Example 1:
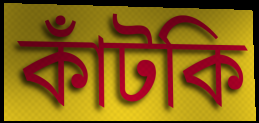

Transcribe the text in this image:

কাঁটকি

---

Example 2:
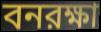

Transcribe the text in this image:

বনরক্ষা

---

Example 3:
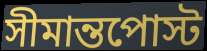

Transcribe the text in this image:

সীমান্তপোস্ট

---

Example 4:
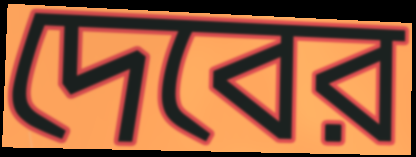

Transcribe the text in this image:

দেবের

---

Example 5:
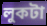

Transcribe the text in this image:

লুকটা